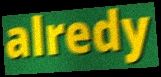
alredy